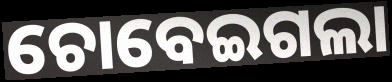
ଚୋବେଇଗଲା